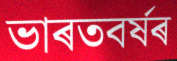
ভাৰতবৰ্ষৰ